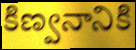
కిణ్వనానికి